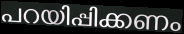
പറയിപ്പിക്കണം